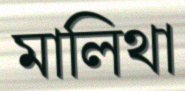
মালিথা